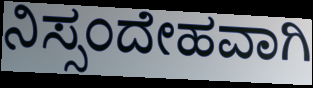
ನಿಸ್ಸಂದೇಹವಾಗಿ